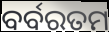
ବର୍ବରତମ